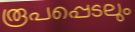
രൂപപ്പെടലും